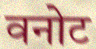
वनोट